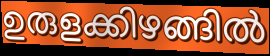
ഉരുളക്കിഴങ്ങിൽ